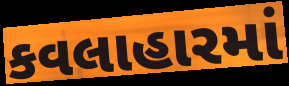
કવલાહારમાં